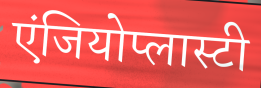
एंजियोप्लास्टी